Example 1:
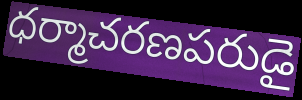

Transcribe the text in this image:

ధర్మాచరణపరుడై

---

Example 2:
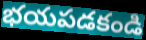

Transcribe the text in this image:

భయపడకండి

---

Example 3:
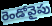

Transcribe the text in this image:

రెండోవైపు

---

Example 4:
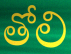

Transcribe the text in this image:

తోలి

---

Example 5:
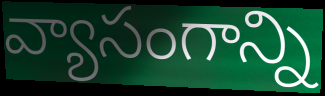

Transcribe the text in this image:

వ్యాసంగాన్ని